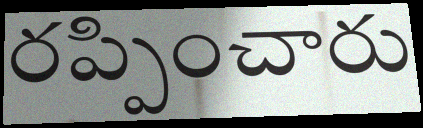
రప్పించారు